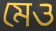
মেও